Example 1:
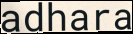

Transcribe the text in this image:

adhara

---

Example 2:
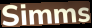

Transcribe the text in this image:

Simms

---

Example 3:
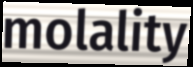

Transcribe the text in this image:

molality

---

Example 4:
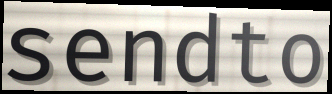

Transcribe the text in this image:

sendto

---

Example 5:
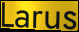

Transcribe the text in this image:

Larus